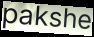
pakshe